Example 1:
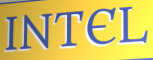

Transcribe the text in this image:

INTEL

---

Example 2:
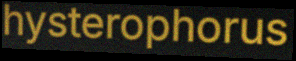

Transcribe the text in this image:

hysterophorus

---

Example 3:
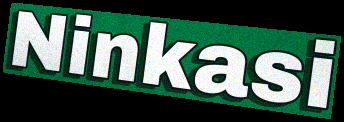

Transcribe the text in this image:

Ninkasi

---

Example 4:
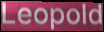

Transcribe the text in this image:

Leopold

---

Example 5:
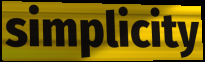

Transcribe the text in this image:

simplicity